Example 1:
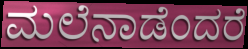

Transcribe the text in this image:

ಮಲೆನಾಡೆಂದರೆ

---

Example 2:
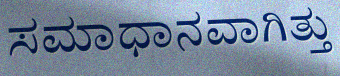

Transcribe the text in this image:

ಸಮಾಧಾನವಾಗಿತ್ತು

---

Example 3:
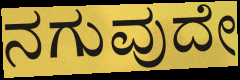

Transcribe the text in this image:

ನಗುವುದೇ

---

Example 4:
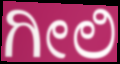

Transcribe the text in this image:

ಗೀಲಿ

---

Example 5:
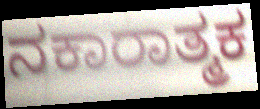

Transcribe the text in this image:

ನಕಾರಾತ್ಮಕ